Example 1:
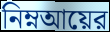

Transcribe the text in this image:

নিম্নআয়ের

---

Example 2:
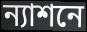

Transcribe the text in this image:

ন্যাশনে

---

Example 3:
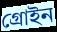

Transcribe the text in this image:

গ্রোইন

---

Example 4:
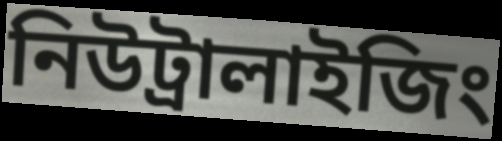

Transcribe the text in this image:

নিউট্রালাইজিং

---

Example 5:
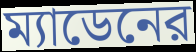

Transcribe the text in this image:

ম্যাডেনের